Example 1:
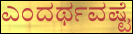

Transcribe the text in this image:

ಎಂದರ್ಥವಷ್ಟೆ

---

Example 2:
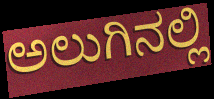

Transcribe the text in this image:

ಅಲುಗಿನಲ್ಲಿ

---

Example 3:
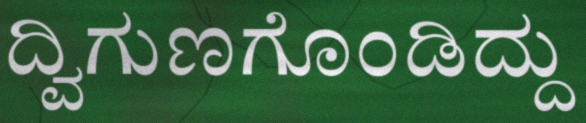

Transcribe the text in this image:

ದ್ವಿಗುಣಗೊಂಡಿದ್ದು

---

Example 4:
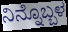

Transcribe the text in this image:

ನಿನ್ನೊಬ್ಬಳ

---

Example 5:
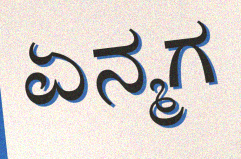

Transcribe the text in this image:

ಏನ್ಮಗ